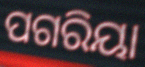
ପଗରିୟା